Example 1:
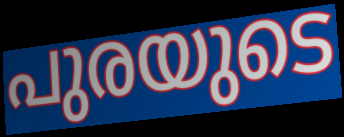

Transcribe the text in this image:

പുരയുടെ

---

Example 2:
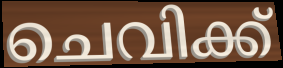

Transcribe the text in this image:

ചെവിക്ക്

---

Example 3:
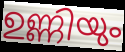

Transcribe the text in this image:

ഉണ്ണിയും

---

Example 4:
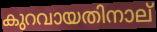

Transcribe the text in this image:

കുറവായതിനാല്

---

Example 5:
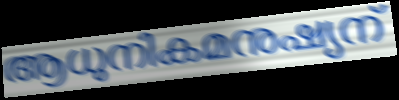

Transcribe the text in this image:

ആധുനികമനുഷ്യന്